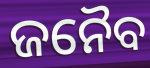
ଜନୈବ